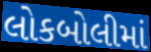
લોકબોલીમાં